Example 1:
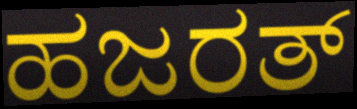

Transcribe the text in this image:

ಹಜರತ್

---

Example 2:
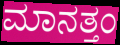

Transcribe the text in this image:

ಮಾನತ್ತಂ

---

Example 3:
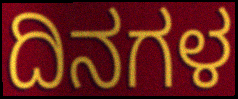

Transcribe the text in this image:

ದಿನಗಳ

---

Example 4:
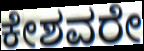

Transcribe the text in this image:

ಕೇಶವರೇ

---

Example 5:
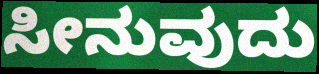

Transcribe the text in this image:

ಸೀನುವುದು